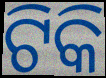
ଟିକି